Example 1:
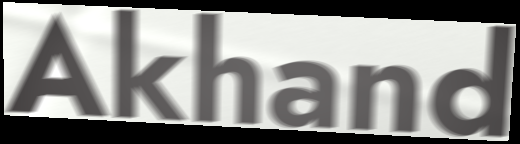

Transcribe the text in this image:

Akhand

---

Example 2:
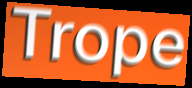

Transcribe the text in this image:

Trope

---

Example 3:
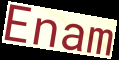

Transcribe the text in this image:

Enam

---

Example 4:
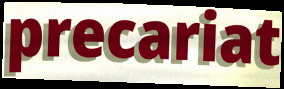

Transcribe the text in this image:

precariat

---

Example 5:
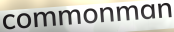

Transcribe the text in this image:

commonman